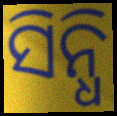
ସିନ୍ଧି